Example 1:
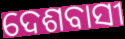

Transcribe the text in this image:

ଦେଶବାସୀ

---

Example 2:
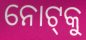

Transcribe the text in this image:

ନୋଟ୍‌କୁ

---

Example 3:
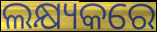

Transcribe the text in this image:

ଲକ୍ଷ୍ୟକରେ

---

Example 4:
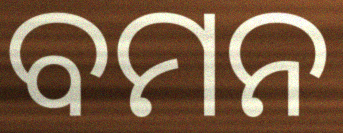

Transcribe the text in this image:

ବମନ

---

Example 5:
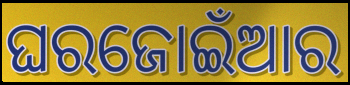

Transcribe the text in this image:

ଘରଜୋଇଁଆର